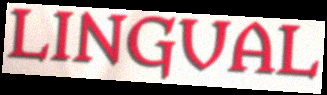
LINGUAL